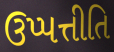
ઉપ્પત્તીતિ